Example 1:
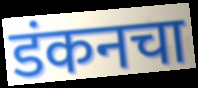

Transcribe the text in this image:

डंकनचा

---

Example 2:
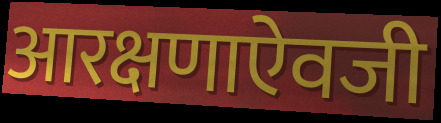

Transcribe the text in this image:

आरक्षणाऐवजी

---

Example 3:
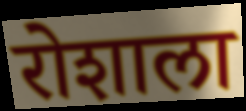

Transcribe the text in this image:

रोशाला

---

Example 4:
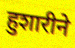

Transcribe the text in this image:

हुशारीने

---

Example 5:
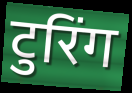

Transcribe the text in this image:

टुरिंग